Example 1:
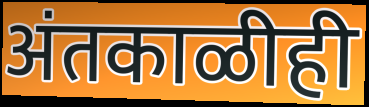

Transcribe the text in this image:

अंतकाळीही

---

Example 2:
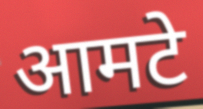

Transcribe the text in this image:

आमटे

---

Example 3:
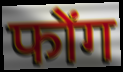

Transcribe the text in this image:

फोंग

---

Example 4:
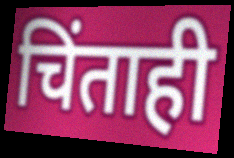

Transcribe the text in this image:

चिंताही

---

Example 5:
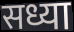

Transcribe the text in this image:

सध्या